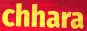
chhara